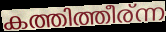
കത്തിത്തീര്ന്ന